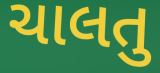
ચાલતુ